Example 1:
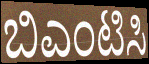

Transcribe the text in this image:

ಬಿಎಂಟಿಸಿ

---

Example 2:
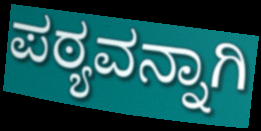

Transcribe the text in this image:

ಪಠ್ಯವನ್ನಾಗಿ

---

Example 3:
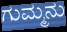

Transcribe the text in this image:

ಗುಮ್ಮನು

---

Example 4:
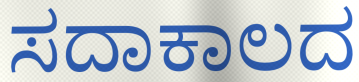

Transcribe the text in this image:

ಸದಾಕಾಲದ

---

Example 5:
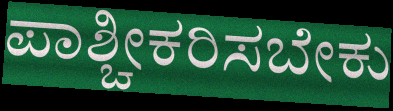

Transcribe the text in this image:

ಪಾಶ್ಚೀಕರಿಸಬೇಕು